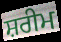
ਸ਼ਰੀਮ